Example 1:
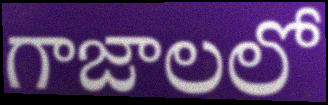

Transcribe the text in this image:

గాజాలలో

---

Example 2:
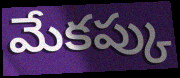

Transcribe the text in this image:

మేకప్కు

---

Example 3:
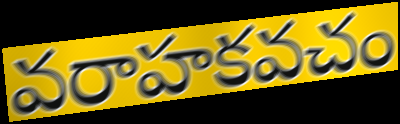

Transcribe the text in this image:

వరాహకవచం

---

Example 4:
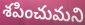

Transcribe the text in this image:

శపించుమని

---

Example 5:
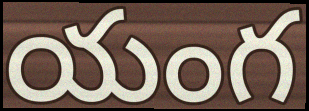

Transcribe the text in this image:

యంగ